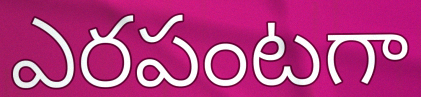
ఎరపంటగా